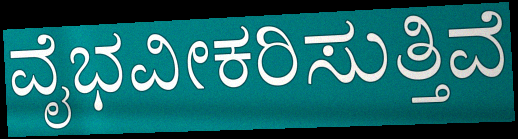
ವೈಭವೀಕರಿಸುತ್ತಿವೆ